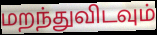
மறந்துவிடவும்